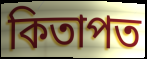
কিতাপত